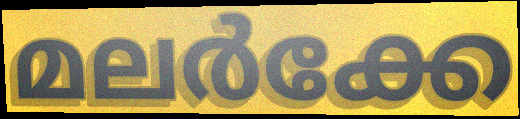
മലർക്കേ